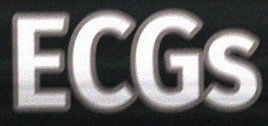
ECGs